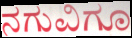
ನಗುವಿಗೂ